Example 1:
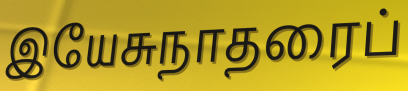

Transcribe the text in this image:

இயேசுநாதரைப்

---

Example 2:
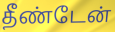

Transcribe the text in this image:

தீண்டேன்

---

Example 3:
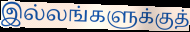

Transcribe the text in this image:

இல்லங்களுக்குத்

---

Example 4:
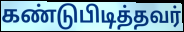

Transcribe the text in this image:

கண்டுபிடித்தவர்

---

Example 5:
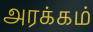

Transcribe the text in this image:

அரக்கம்